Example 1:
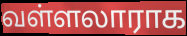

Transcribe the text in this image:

வள்ளலாராக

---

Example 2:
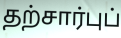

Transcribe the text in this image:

தற்சார்புப்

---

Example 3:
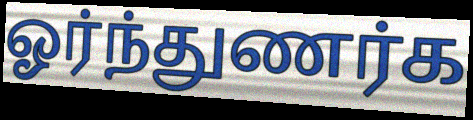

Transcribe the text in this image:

ஓர்ந்துணர்க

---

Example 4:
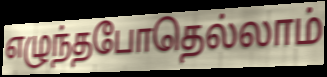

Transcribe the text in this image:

எழுந்தபோதெல்லாம்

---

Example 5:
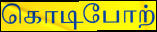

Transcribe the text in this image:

கொடிபோற்